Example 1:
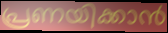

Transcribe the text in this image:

പ്രണയിക്കാൻ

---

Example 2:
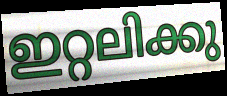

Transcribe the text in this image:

ഇറ്റലിക്കു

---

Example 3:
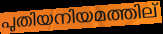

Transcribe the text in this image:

പുതിയനിയമത്തില്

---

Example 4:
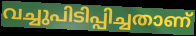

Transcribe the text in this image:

വച്ചുപിടിപ്പിച്ചതാണ്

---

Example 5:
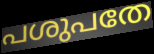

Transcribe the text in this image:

പശുപതേ